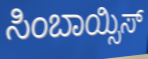
ಸಿಂಬಾಯ್ಸಿಸ್